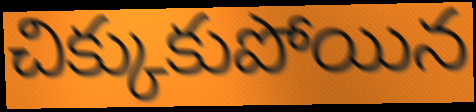
చిక్కుకుపోయిన